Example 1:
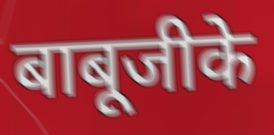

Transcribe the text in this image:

बाबूजीके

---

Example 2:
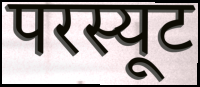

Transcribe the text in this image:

परस्यूट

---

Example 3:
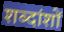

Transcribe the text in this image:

शब्दांशों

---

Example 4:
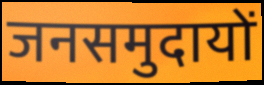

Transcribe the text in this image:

जनसमुदायों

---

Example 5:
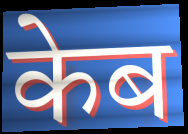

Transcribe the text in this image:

केब